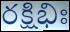
రక్షిభిః